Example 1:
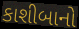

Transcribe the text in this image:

કાશીબાનો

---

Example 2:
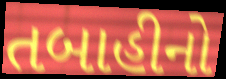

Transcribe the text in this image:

તબાહીનો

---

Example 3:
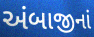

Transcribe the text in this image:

અંબાજીનાં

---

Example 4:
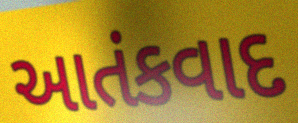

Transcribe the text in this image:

આતંકવાદ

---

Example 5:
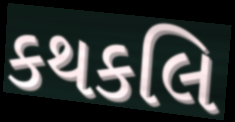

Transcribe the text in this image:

કથકલિ